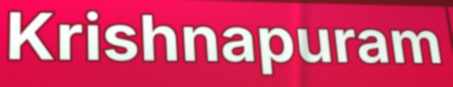
Krishnapuram